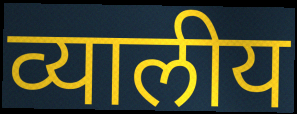
व्यालीय